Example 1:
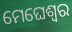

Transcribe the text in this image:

ମେଘେଶ୍ୱର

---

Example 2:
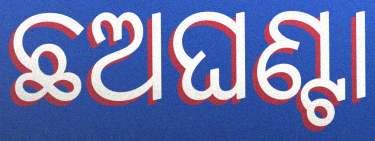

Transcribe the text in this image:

ଛଅଘଣ୍ଟା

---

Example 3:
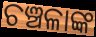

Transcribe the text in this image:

ଚଞ୍ଚଳାଙ୍କ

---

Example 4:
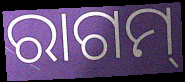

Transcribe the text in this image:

ରାଗମ୍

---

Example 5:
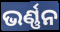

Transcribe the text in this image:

ଭର୍ଣ୍ଣନ